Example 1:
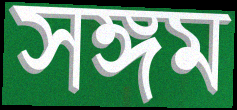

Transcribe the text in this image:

সঙ্গম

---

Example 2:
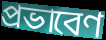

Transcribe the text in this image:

প্রভাবেণ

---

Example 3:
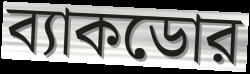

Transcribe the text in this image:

ব্যাকডোর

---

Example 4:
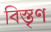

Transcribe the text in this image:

বিস্তৃণ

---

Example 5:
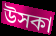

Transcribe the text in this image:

উসকা